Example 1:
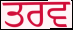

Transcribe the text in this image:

ਤਰਵ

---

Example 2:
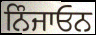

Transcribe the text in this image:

ਨਿੰਜਾਓਨ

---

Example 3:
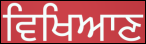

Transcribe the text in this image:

ਵਿਖਿਆਣ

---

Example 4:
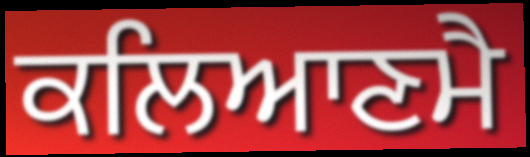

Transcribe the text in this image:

ਕਲਿਆਣਮੈ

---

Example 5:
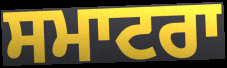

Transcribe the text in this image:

ਸਮਾਟਰਾ